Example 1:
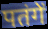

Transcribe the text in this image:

पतंगें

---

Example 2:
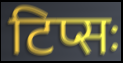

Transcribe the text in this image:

टिप्सः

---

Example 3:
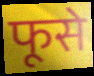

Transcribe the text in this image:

फूसे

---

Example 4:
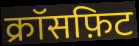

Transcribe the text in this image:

क्रॉसफ़िट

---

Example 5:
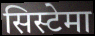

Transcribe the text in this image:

सिस्टेमा